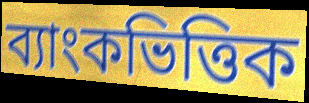
ব্যাংকভিত্তিক